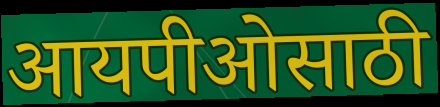
आयपीओसाठी